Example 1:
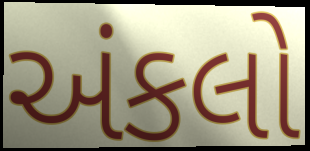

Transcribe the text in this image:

અંકલો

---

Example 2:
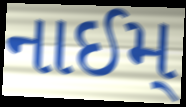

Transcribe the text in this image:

નાઈમ્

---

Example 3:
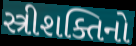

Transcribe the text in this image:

સ્ત્રીશક્તિનો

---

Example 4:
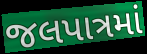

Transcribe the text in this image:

જલપાત્રમાં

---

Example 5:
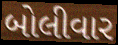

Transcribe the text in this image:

બોલીવાર